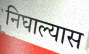
निघाल्यास